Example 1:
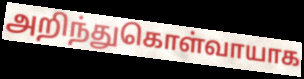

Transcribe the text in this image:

அறிந்துகொள்வாயாக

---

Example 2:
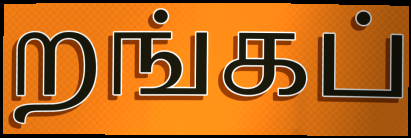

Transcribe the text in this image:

றங்கப்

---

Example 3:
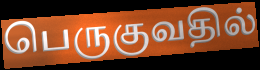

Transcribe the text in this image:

பெருகுவதில்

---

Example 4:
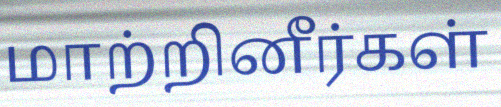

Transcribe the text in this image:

மாற்றினீர்கள்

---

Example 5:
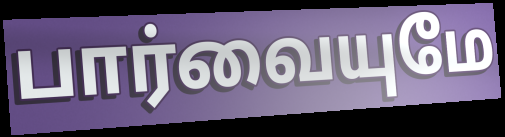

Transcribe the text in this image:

பார்வையுமே